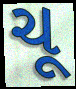
ચૂ